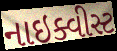
નાઇક્વીસ્ટ